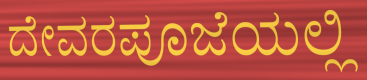
ದೇವರಪೂಜೆಯಲ್ಲಿ